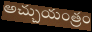
అచ్చుయంత్రం